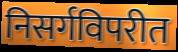
निसर्गविपरीत